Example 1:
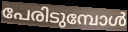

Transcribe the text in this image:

പേരിടുമ്പോൾ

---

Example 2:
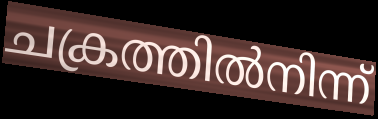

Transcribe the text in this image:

ചക്രത്തിൽനിന്ന്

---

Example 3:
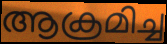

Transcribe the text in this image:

ആക്രമിച്ച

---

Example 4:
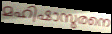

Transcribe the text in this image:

മഹിഷാസുരനെ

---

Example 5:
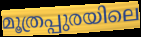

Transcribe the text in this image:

മൂത്രപ്പുരയിലെ